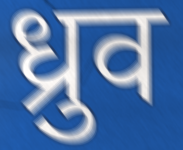
ध्रुव